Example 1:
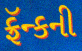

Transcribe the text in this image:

ફ્રૅન્કની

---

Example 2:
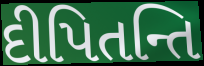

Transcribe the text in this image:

દીપિતન્તિ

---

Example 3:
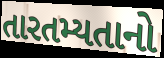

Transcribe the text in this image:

તારતમ્યતાનો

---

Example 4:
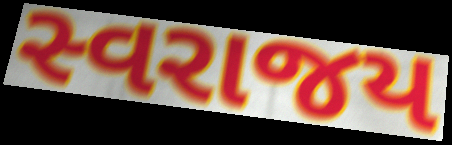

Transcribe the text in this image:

સ્વરાજય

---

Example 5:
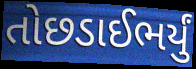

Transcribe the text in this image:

તોછડાઈભર્યું